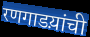
रणगाडय़ांची